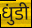
धुंडी